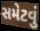
સમેટવું